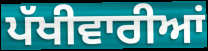
ਪੱਖੀਵਾਰੀਆਂ